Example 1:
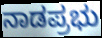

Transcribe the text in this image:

ನಾಡಪ್ರಭು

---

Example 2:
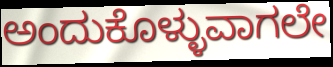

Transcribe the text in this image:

ಅಂದುಕೊಳ್ಳುವಾಗಲೇ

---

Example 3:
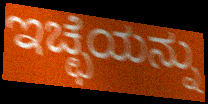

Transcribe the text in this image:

ಇಚ್ಛೆಯನ್ನು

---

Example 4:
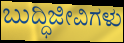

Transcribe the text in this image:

ಬುದ್ಧಿಜೀವಿಗಳು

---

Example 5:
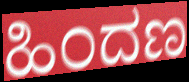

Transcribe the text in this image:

ಹಿಂದಣ